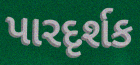
પારદૃર્શક